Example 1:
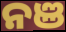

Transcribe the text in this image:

ନଞ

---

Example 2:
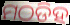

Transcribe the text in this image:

ମଠଡିହ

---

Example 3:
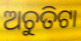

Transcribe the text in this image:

ଅଚୁତିଟା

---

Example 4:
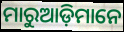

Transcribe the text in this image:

ମାରୁଆଡ଼ିମାନେ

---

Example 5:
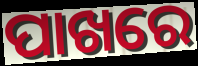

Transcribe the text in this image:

ପାଖରେ